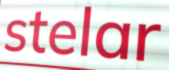
stelar